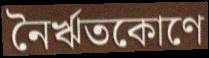
নৈর্ঋতকোণে